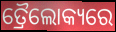
ତ୍ରୈଲୋକ୍ୟରେ